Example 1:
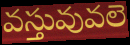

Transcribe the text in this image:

వస్తువువలె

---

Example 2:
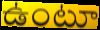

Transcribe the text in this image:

ఉంటూ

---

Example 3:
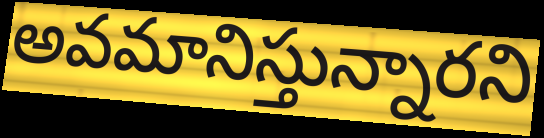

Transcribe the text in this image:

అవమానిస్తున్నారని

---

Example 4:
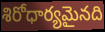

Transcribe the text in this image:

శిరోధార్యమైనది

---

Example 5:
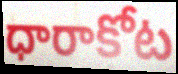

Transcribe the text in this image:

ధారాకోట